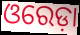
ଓରେଡ଼ା